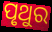
ପୃଥୁର